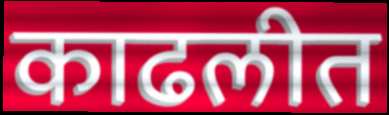
काढलीत